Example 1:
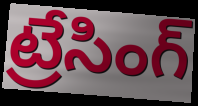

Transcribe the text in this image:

ట్రేసింగ్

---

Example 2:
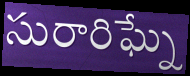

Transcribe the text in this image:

సురారిఘ్నే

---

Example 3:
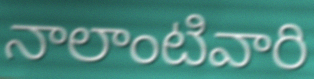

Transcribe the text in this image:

నాలాంటివారి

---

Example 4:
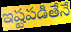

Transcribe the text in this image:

ఇష్టపడితేనే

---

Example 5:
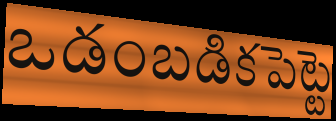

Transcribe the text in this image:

ఒడంబడికపెట్టె